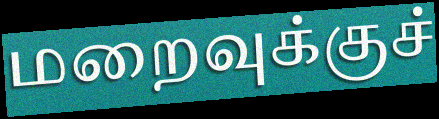
மறைவுக்குச்